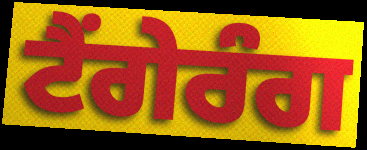
ਟੈਂਗੇਰੰਗ